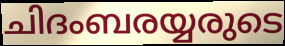
ചിദംബരയ്യരുടെ